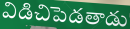
విడిచిపెడతాడు